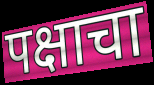
पक्षाचा